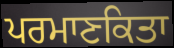
ਪਰਮਾਣਕਿਤਾ